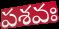
పశవః